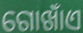
ଗୋଖାଁଏ